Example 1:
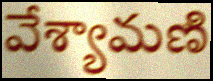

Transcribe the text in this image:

వేశ్యామణి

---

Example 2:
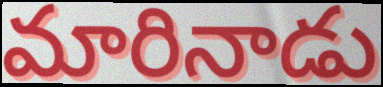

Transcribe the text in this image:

మారినాడు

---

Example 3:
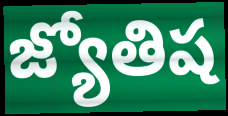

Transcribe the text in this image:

జ్యోతిష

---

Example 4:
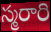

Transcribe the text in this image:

స్మరారి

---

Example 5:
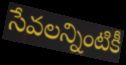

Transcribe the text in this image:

సేవలన్నింటికీ